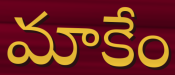
మాకేం